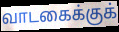
வாடகைக்குக்